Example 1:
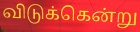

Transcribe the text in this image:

விடுக்கென்று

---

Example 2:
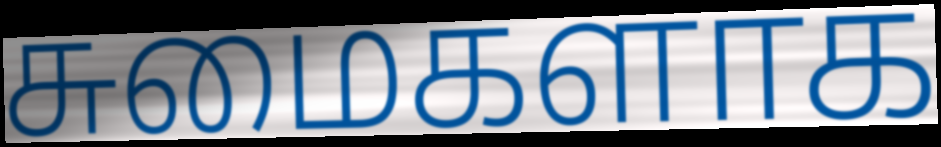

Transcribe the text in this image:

சுமைகளாக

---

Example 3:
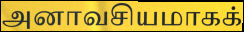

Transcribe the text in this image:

அனாவசியமாகக்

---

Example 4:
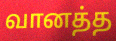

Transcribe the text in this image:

வானத்த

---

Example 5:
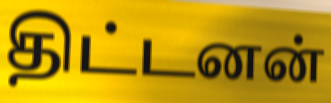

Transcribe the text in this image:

திட்டனன்